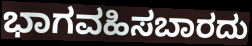
ಭಾಗವಹಿಸಬಾರದು